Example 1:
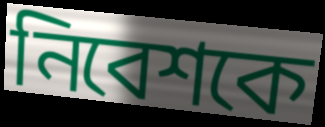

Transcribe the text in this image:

নিবেশকে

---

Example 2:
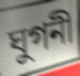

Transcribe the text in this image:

ঘুগনী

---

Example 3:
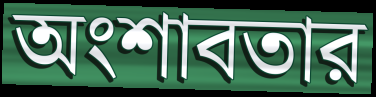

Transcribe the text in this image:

অংশাবতার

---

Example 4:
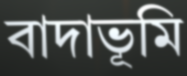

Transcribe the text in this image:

বাদাভূমি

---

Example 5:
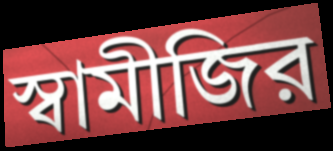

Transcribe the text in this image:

স্বামীজির